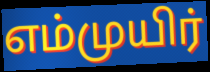
எம்முயிர்